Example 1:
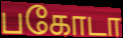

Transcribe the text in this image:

பகோடா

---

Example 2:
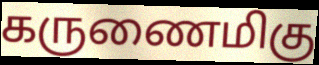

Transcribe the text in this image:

கருணைமிகு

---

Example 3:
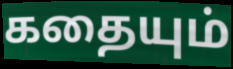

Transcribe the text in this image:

கதையும்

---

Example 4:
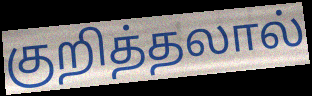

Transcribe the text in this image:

குறித்தலால்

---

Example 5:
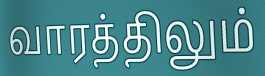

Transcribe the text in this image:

வாரத்திலும்